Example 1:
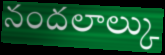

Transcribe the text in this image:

నందలాల్కు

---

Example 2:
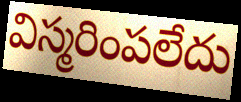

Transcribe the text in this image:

విస్మరింపలేదు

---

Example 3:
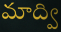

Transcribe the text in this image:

మాద్వి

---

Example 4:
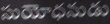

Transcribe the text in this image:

సుయోధనుడు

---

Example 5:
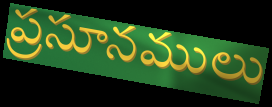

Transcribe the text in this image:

ప్రసూనములు